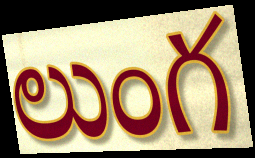
లుంగ